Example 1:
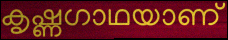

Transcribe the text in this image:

കൃഷ്ണഗാഥയാണ്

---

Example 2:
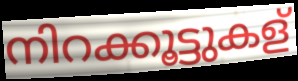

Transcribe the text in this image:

നിറക്കൂട്ടുകള്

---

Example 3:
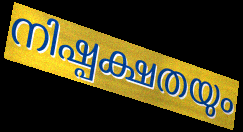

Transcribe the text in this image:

നിഷ്പക്ഷതയും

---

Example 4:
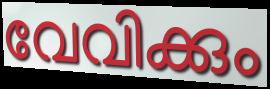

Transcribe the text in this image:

വേവിക്കും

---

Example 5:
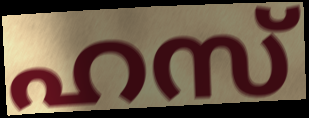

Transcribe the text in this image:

ഹസ്